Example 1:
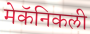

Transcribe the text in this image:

मेकॅनिकली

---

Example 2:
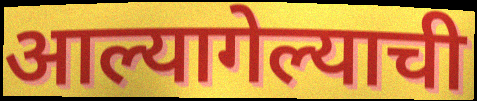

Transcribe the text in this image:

आल्यागेल्याची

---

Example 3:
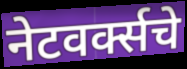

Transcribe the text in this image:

नेटवर्क्सचे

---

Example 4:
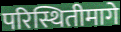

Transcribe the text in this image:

परिस्थितीमागे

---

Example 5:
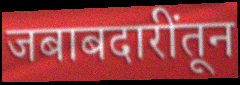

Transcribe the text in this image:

जबाबदारींतून